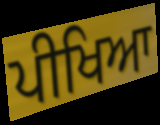
ਪੀਖਿਆ